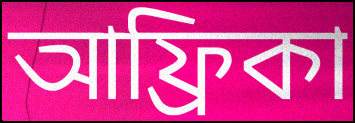
আফ্রিকা